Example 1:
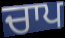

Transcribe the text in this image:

ਚਾਪ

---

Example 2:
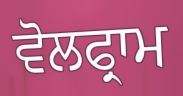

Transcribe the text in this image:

ਵੋਲਫ੍ਰਾਮ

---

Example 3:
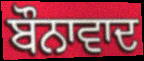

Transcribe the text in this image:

ਬੌਨਾਵਾਦ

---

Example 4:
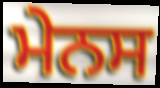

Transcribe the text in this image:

ਮੇਨਸ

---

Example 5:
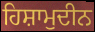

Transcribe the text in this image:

ਹਿਸ਼ਾਮੁਦੀਨ